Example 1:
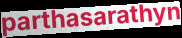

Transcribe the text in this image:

parthasarathyn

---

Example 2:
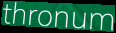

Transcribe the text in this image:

thronum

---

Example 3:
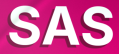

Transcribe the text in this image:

SAS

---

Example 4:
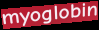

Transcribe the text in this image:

myoglobin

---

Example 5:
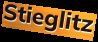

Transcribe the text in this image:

Stieglitz